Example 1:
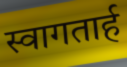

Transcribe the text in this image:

स्वागतार्ह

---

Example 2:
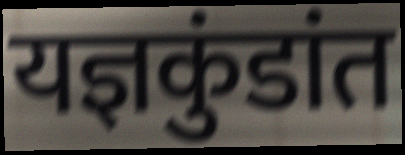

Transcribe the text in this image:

यज्ञकुंडांत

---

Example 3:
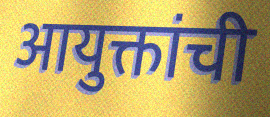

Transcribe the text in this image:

आयुक्तांची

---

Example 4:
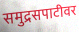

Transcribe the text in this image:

समुद्रसपाटीवर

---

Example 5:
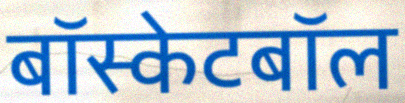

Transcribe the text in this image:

बॉस्केटबॉल